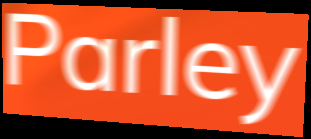
Parley